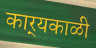
कार्यकाळी